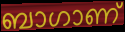
ബാഗാണ്